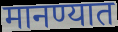
मानण्यात